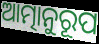
ଆତ୍ମାନୁରୂପ